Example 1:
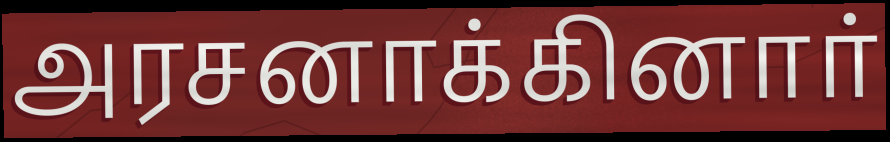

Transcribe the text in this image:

அரசனாக்கினார்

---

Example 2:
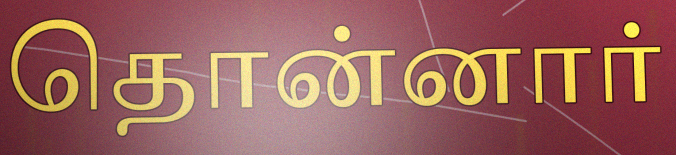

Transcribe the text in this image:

தொன்னார்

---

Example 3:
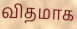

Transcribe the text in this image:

விதமாக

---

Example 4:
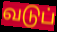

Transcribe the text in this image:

வடுப்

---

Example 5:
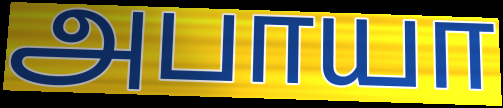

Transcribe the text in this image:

அபாயா